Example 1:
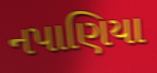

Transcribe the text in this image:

નપાણિયા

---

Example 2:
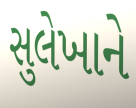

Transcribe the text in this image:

સુલેખાને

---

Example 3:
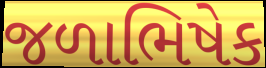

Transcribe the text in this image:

જળાભિષેક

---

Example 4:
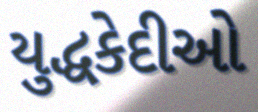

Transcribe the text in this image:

યુદ્ધકેદીઓ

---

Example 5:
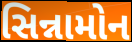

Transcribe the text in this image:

સિન્નામોન